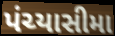
પંચ્યાસીમા